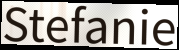
Stefanie